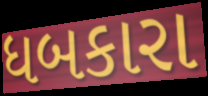
ધબકારા